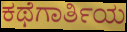
ಕಥೆಗಾರ್ತಿಯ